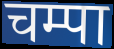
चम्पा